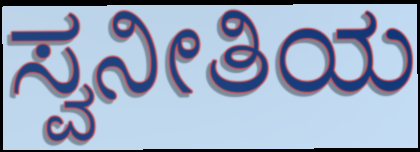
ಸ್ವನೀತಿಯ